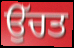
ਉੱਚਤ